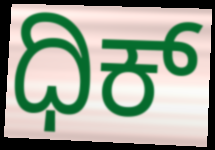
ಧಿಕ್